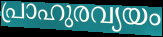
പ്രാഹുരവ്യയം